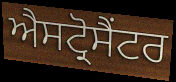
ਐਸਟ੍ਰੋਸੈਂਟਰ